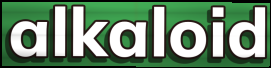
alkaloid